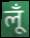
लूँ